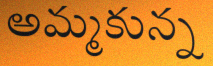
అమ్మకున్న